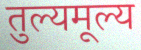
तुल्यमूल्य